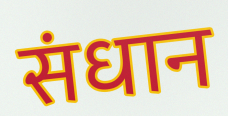
संधान